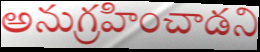
అనుగ్రహించాడని